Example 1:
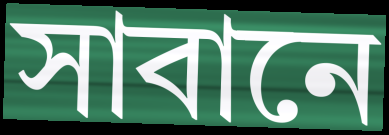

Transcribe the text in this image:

সাবানে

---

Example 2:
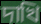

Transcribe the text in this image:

দাখি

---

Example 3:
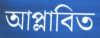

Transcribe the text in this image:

আপ্লাবিত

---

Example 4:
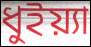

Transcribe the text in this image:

ধুইয়্যা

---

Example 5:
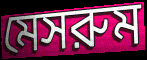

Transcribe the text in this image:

মেসরুম